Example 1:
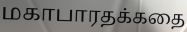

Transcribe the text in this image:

மகாபாரதக்கதை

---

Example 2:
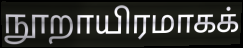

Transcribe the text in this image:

நூறாயிரமாகக்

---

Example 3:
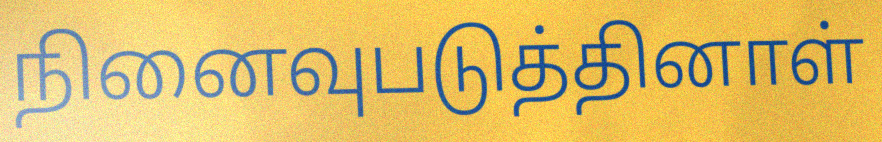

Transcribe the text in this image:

நினைவுபடுத்தினாள்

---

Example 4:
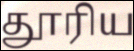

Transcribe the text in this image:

தூரிய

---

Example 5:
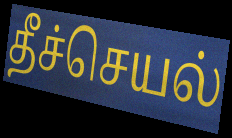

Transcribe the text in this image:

தீச்செயல்